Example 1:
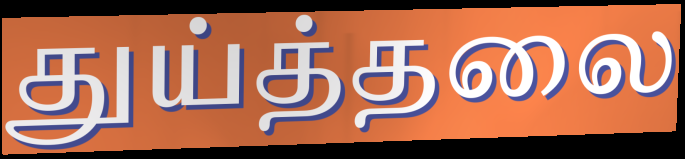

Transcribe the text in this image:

துய்த்தலை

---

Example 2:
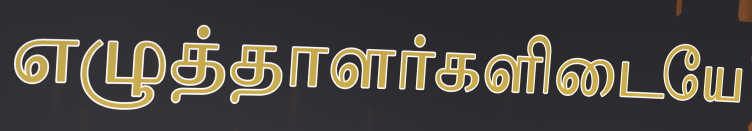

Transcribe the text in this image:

எழுத்தாளர்களிடையே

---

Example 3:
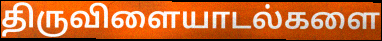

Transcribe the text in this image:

திருவிளையாடல்களை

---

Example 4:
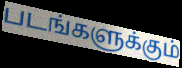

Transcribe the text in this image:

படங்களுக்கும்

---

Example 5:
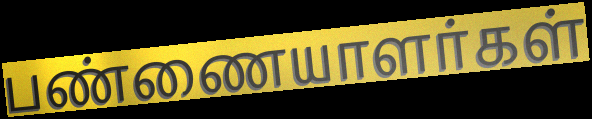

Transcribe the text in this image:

பண்ணையாளர்கள்